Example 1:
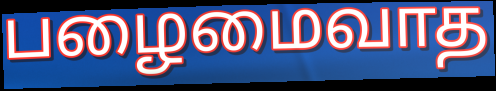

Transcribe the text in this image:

பழைமைவாத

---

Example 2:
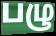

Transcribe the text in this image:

பழு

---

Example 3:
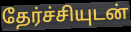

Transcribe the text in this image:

தேர்ச்சியுடன்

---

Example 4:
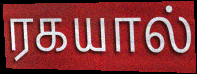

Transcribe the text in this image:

ரகயால்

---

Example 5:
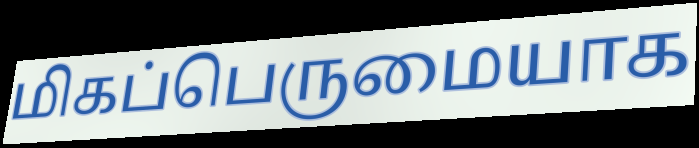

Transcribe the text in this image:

மிகப்பெருமையாக